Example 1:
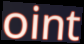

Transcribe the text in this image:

oint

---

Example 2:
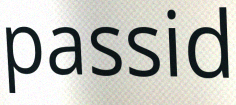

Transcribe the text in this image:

passid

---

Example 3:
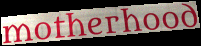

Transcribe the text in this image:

motherhood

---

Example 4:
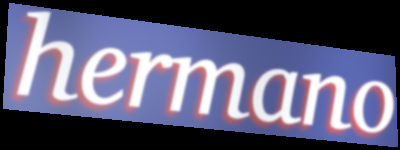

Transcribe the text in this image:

hermano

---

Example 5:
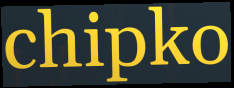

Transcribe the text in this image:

chipko